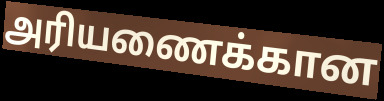
அரியணைக்கான